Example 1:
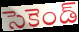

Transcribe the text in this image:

సెకెండ్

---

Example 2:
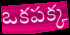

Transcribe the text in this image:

ఒకపక్క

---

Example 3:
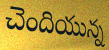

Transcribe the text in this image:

చెందియున్న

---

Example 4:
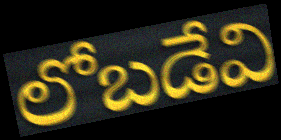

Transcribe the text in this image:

లోబడేవి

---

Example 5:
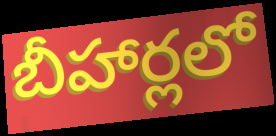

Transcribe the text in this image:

బీహార్లలో